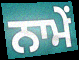
ਨਾਮੇਂ